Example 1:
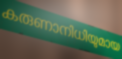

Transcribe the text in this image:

കരുണാനിധിയുമായ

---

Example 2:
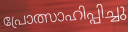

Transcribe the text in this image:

പ്രോത്സാഹിപ്പിച്ചു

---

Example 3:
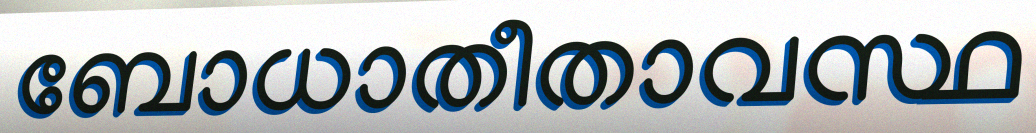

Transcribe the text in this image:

ബോധാതീതാവസ്ഥ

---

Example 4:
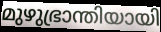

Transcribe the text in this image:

മുഴുഭ്രാന്തിയായി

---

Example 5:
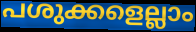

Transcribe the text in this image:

പശുക്കളെല്ലാം